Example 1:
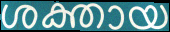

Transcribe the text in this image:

ശക്തായ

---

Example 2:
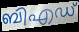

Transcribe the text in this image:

ബിഎഡ്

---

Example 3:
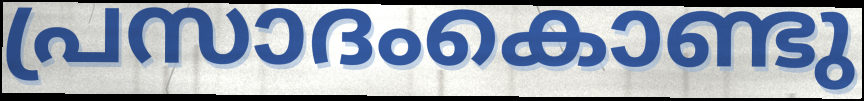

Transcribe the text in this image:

പ്രസാദംകൊണ്ടു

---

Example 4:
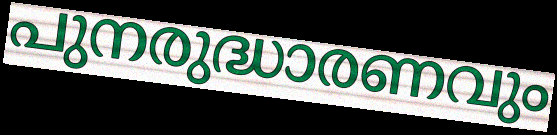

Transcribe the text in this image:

പുനരുദ്ധാരണവും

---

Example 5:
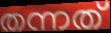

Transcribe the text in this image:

തന്നത്